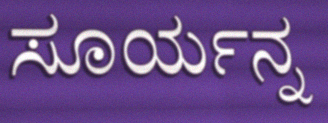
ಸೂರ್ಯನ್ನ